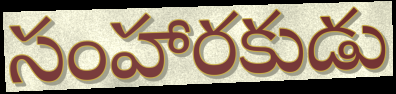
సంహారకుడు